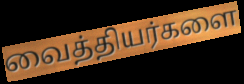
வைத்தியர்களை